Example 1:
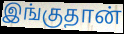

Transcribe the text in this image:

இங்குதான்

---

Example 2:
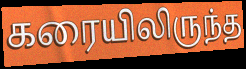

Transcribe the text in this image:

கரையிலிருந்த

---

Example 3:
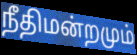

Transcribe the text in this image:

நீதிமன்றமும்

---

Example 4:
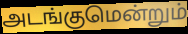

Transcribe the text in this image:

அடங்குமென்றும்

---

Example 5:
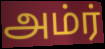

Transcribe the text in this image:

அம்ர்